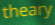
theary